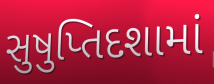
સુષુપ્તિદશામાં